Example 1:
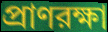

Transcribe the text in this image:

প্রাণরক্ষা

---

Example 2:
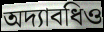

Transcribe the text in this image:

অদ্যাবধিও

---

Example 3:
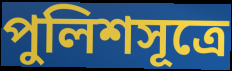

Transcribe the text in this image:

পুলিশসূত্রে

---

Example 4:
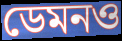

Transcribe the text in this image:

ডেমনও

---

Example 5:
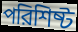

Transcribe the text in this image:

পরিশিষ্ট